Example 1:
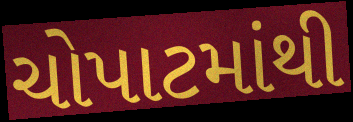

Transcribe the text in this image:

ચોપાટમાંથી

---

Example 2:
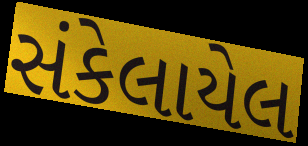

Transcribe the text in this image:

સંકેલાયેલ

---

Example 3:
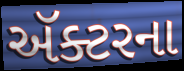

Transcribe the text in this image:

ઍક્ટરના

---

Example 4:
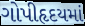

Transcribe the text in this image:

ગોપીહૃદયમાં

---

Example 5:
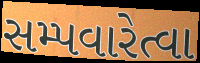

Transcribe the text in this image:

સમ્પવારેત્વા